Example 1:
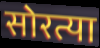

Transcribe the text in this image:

सोरत्या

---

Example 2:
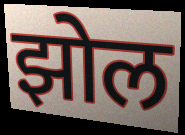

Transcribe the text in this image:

झोल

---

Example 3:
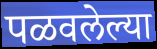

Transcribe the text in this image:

पळवलेल्या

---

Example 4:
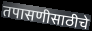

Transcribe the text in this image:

तपासणीसाठीचे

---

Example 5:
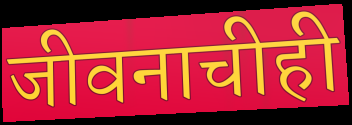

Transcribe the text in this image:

जीवनाचीही